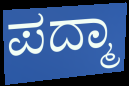
ಪದ್ಮಾ